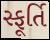
સ્ફૂર્તિ